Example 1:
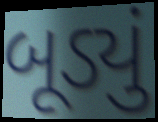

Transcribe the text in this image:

બૂડ્યું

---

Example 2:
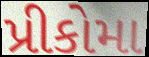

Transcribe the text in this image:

પ્રીકોમા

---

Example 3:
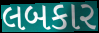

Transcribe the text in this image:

લબકાર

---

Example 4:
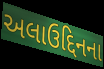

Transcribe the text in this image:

અલાઉદ્દિનના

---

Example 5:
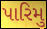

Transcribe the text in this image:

પારિમુ